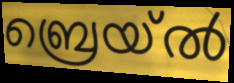
ബ്രെയ്ൽ